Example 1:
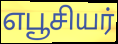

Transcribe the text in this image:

எபூசியர்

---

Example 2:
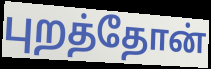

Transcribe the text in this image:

புறத்தோன்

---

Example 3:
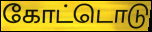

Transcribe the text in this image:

கோட்டொடு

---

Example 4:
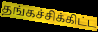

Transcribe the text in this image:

தங்கச்சிக்கிட்ட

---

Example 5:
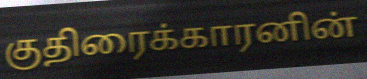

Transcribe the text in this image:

குதிரைக்காரனின்